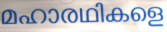
മഹാരഥികളെ